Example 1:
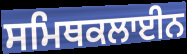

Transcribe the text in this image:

ਸਮਿਥਕਲਾਈਨ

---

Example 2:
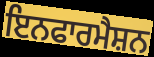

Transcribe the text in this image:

ਇਨਫਾਰਮੈਸ਼ਨ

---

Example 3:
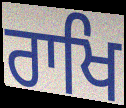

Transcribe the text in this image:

ਰਾਖਿ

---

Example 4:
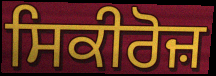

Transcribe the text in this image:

ਸਿਕੀਰੋਜ਼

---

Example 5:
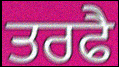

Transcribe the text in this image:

ਤਰਫੈ